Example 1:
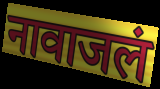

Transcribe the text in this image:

नावाजलं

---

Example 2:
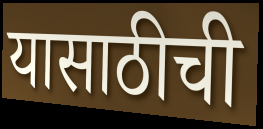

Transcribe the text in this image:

यासाठीची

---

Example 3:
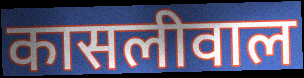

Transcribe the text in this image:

कासलीवाल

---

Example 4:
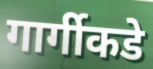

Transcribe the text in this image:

गार्गीकडे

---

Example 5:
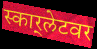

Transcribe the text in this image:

स्कार्लेटवर